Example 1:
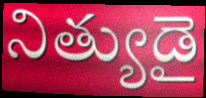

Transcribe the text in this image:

నిత్యుడై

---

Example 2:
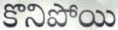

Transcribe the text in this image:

కొనిపోయి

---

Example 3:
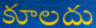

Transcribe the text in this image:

కూలదు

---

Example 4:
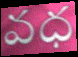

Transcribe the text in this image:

వధ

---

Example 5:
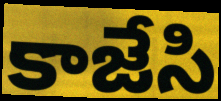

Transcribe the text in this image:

కాజేసి